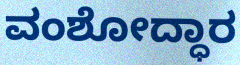
ವಂಶೋದ್ಧಾರ